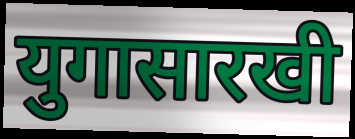
युगासारखी